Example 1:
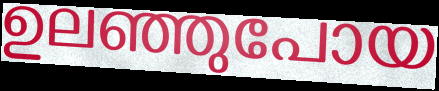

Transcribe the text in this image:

ഉലഞ്ഞുപോയ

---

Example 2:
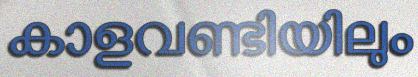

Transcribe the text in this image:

കാളവണ്ടിയിലും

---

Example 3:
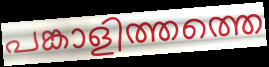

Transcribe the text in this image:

പങ്കാളിത്തത്തെ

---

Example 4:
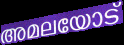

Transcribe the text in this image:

അമലയോട്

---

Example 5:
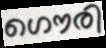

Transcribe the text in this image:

ഗൌരി